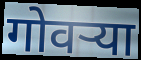
गोवर्‍या